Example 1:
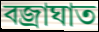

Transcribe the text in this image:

বজ্রাঘাত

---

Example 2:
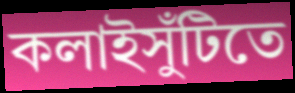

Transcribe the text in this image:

কলাইসুঁটিতে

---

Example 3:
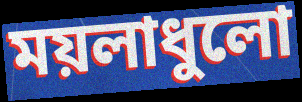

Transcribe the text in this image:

ময়লাধুলো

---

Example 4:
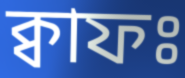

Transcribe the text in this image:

ক্বাফঃ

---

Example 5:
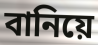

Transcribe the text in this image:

বানিয়ে